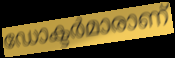
ഡോക്ടർമാരാണ്